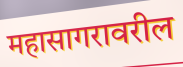
महासागरावरील